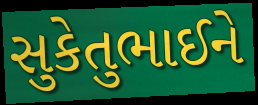
સુકેતુભાઈને